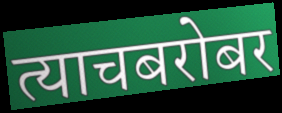
त्‍याचबरोबर